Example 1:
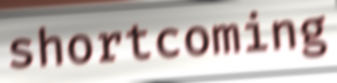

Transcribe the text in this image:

shortcoming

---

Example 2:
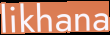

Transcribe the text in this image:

likhana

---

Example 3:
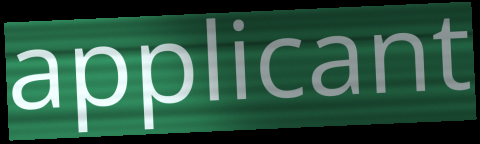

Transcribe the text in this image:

applicant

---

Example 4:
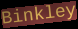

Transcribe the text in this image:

Binkley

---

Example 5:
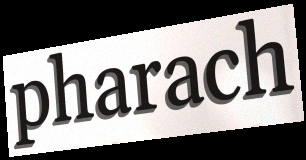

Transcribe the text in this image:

pharach